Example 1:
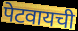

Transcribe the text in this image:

पेटवायची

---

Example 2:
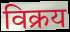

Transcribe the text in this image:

विक्रय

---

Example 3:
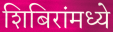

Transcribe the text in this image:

शिबिरांमध्ये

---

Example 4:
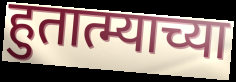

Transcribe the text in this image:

हुतात्म्याच्या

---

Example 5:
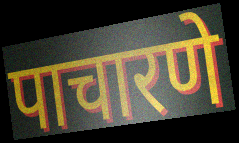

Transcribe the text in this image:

पाचारणे